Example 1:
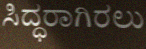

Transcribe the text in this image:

ಸಿದ್ಧರಾಗಿರಲು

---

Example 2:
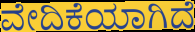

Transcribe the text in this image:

ವೇದಿಕೆಯಾಗಿದೆ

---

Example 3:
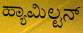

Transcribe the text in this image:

ಹ್ಯಾಮಿಲ್ಟನ್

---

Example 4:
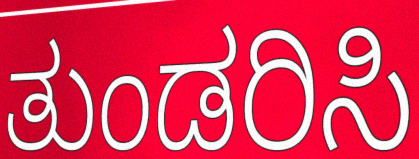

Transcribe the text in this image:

ತುಂಡರಿಸಿ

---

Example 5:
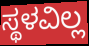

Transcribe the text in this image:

ಸ್ಥಳವಿಲ್ಲ